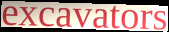
excavators